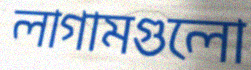
লাগামগুলো